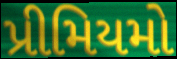
પ્રીમિયમો